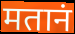
मतानं